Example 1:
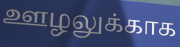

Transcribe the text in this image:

ஊழலுக்காக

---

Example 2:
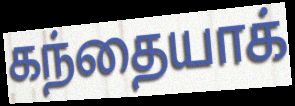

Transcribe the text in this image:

கந்தையாக்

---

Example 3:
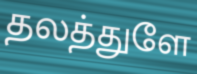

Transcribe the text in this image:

தலத்துளே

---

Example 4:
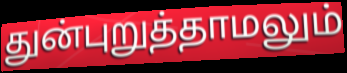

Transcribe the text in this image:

துன்புறுத்தாமலும்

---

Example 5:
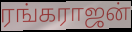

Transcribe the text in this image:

ரங்கராஜன்